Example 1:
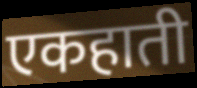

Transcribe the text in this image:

एकहाती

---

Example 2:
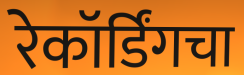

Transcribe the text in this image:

रेकॉर्डिंगचा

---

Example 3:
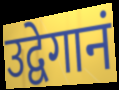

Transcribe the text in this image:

उद्वेगानं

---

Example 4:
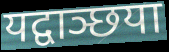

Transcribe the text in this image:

यद्वाञ्छया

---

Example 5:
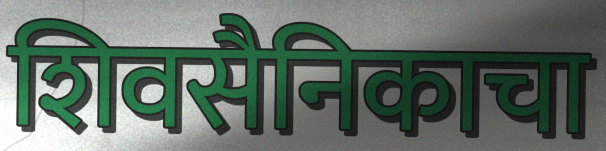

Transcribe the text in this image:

शिवसैनिकाचा